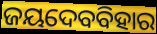
ଜୟଦେବବିହାର